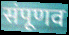
संपूणव